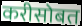
करीसोबत